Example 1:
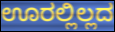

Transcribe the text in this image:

ಊರಲ್ಲಿಲ್ಲದ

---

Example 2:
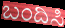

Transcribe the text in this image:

ಬಂದಿಸಿ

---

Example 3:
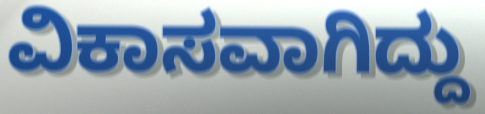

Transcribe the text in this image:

ವಿಕಾಸವಾಗಿದ್ದು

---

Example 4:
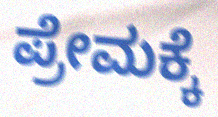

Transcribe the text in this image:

ಪ್ರೇಮಕ್ಕೆ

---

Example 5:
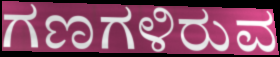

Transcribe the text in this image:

ಗಣಗಳಿರುವ